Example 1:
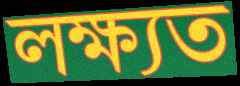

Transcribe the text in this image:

লক্ষ্যত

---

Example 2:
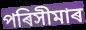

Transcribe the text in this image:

পৰিসীমাৰ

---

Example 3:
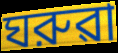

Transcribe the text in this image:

ঘৰুৱা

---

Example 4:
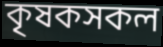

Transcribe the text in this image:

কৃষকসকল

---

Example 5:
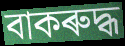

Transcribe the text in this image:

বাকৰুদ্ধ